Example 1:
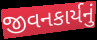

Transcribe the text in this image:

જીવનકાર્યનું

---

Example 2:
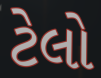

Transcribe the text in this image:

ટેલો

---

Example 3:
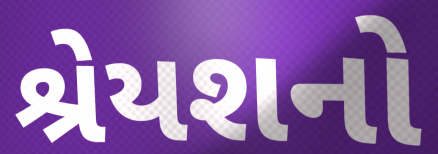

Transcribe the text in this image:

શ્રેયશનો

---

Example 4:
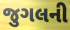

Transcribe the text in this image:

જુગલની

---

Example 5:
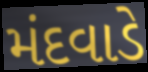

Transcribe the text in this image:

મંદવાડે